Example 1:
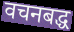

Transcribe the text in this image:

वचनबद्ध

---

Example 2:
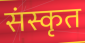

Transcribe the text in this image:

संस्कृत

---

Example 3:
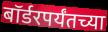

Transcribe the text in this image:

बॉर्डरपर्यंतच्या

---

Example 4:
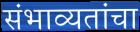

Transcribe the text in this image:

संभाव्यतांचा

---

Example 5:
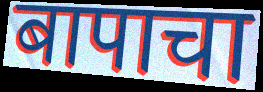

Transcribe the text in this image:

बापाचा